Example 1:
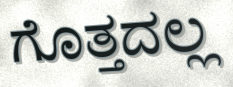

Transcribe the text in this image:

ಗೊತ್ತದಲ್ಲ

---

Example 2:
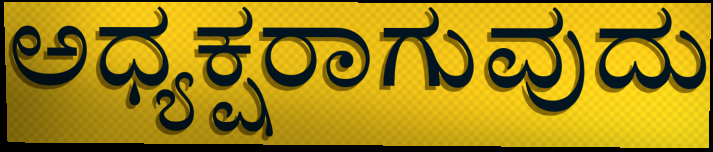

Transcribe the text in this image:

ಅಧ್ಯಕ್ಷರಾಗುವುದು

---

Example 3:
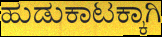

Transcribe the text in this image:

ಹುಡುಕಾಟಕ್ಕಾಗಿ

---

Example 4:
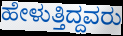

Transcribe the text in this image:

ಹೇಳುತ್ತಿದ್ದವರು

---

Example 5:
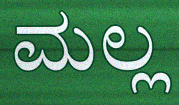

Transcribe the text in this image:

ಮಲ್ಲ